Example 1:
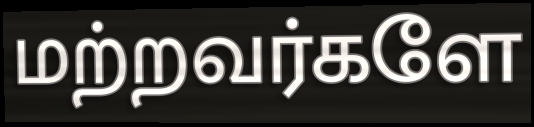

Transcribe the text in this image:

மற்றவர்களே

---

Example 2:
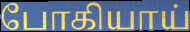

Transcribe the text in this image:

போகியாய்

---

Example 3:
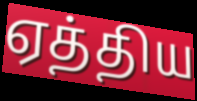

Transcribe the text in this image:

ஏத்திய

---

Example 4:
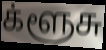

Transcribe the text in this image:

க்ளூசு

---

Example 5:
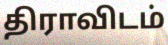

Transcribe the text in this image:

திராவிடம்